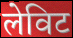
लेविट